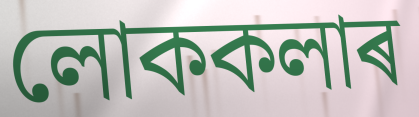
লোককলাৰ